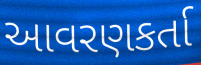
આવરણકર્તા